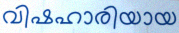
വിഷഹാരിയായ